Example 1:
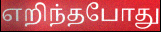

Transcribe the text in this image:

எறிந்தபோது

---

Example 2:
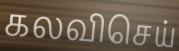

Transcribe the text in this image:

கலவிசெய்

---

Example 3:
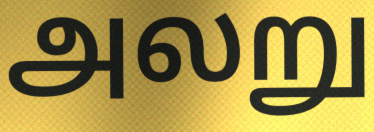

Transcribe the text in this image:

அலறு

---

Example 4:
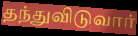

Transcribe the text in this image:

தந்துவிடுவார்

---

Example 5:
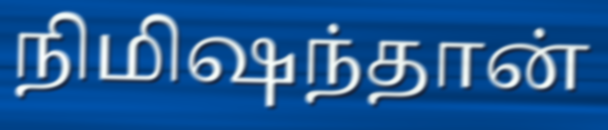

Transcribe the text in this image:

நிமிஷந்தான்